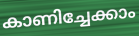
കാണിച്ചേക്കാം